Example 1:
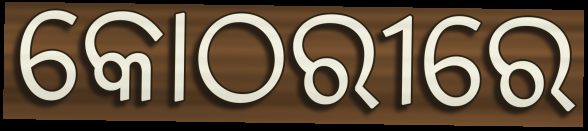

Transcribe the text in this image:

କୋଠରୀରେ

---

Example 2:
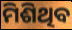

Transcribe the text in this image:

ମିଶିଥିବ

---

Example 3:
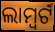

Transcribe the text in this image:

ଲାମ୍ବର୍ଟ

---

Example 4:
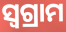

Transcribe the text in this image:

ସ୍ୱଗ୍ରାମ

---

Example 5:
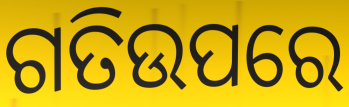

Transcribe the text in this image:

ଗତିଉପରେ